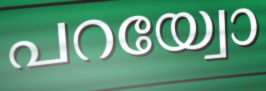
പറയ്വോ